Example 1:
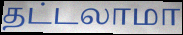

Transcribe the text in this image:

தட்டலாமா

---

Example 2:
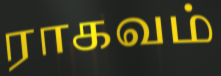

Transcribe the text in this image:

ராகவம்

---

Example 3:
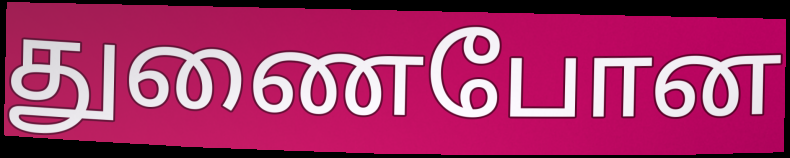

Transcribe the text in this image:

துணைபோன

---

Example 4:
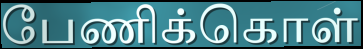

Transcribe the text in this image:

பேணிக்கொள்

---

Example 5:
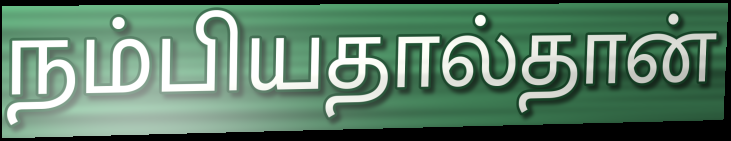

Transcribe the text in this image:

நம்பியதால்தான்